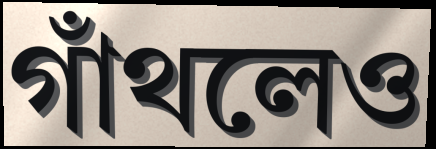
গাঁথলেও